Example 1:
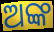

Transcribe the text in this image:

ଅଙ୍କ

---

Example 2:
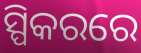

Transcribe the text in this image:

ସ୍ପିକରରେ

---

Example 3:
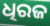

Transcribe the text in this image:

ଧିରଜ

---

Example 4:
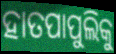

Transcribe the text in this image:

ହାତପାପୁଲିକୁ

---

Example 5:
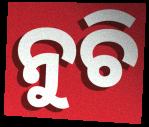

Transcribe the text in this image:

ନୁଚି